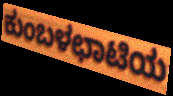
ಕುಂಬಳಛಾಟಿಯ